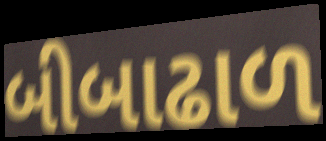
બીબાઢાળ